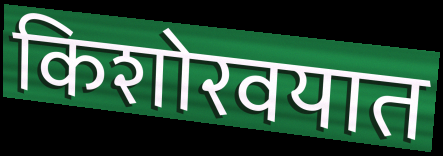
किशोरवयात